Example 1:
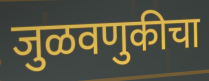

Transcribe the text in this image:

जुळवणुकीचा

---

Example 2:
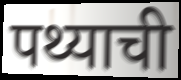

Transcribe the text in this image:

पथ्याची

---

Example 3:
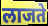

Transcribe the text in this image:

लाजते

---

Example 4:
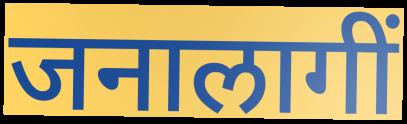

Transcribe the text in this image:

जनालागीं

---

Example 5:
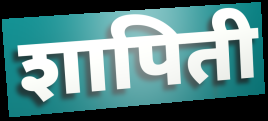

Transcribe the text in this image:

शापिती